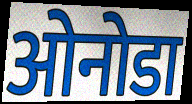
ओनोडा